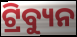
ଟ୍ରିବ୍ୟୁନ